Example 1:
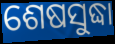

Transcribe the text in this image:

ଶେଷସୁଦ୍ଧା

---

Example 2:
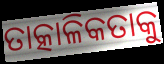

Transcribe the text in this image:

ତାତ୍କାଳିକତାକୁ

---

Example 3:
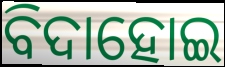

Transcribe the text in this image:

ବିଦାହୋଇ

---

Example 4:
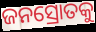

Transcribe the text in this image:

ଜନସ୍ରୋତକୁ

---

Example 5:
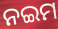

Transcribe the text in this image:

ନଇମ